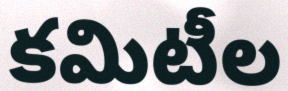
కమిటీల